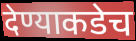
देण्याकडेच